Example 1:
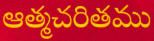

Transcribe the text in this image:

ఆత్మచరితము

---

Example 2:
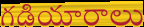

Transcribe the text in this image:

గడియారాలు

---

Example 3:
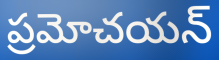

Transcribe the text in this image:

ప్రమోచయన్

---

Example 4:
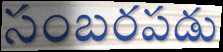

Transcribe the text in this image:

సంబరపడు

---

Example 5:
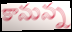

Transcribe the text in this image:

కానున్న